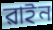
ৱাইন